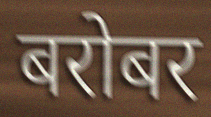
बरोबर